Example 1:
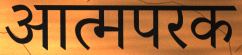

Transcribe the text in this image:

आत्मपरक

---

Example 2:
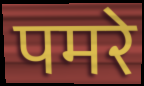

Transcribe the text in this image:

पमरे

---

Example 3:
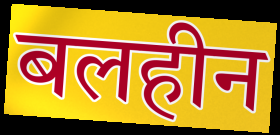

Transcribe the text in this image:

बलहीन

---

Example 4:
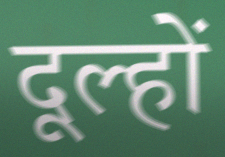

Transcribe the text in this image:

दूल्‍हों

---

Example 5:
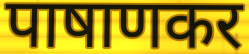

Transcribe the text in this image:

पाषाणकर